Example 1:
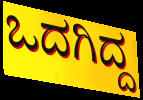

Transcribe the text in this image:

ಒದಗಿದ್ದ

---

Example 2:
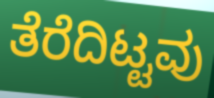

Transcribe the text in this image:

ತೆರೆದಿಟ್ಟವು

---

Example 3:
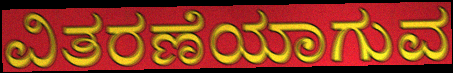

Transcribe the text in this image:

ವಿತರಣೆಯಾಗುವ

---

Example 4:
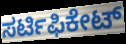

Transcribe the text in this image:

ಸರ್ಟಿಫಿಕೇಟ್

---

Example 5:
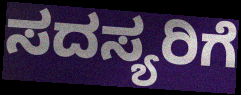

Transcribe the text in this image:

ಸದಸ್ಯರಿಗೆ